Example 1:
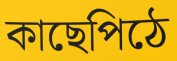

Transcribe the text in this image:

কাছেপিঠে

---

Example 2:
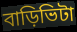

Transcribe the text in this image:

বাড়িভিটা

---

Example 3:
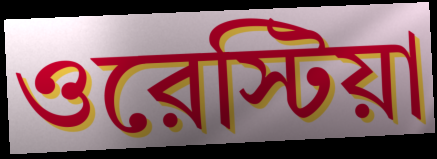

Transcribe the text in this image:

ওরেস্টিয়া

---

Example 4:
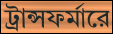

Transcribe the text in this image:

ট্রান্সফর্মারে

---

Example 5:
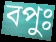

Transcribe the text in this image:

বপুঃ